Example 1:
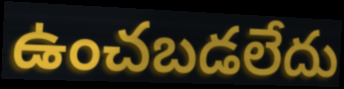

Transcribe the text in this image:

ఉంచబడలేదు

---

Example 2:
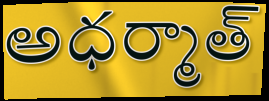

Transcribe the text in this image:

అధర్మాత్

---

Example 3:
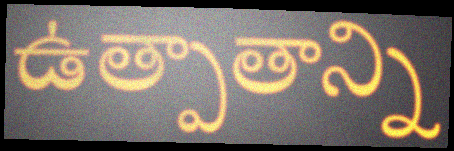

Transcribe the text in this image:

ఉత్పాతాన్ని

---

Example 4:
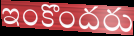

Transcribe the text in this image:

ఇంకొందరు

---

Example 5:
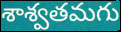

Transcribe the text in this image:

శాశ్వతమగు